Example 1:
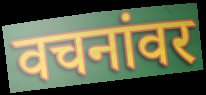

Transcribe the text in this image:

वचनांवर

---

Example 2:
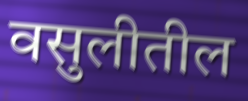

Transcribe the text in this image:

वसुलीतील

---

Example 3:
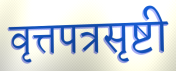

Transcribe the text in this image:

वृत्तपत्रसृष्टी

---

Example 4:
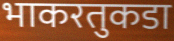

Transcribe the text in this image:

भाकरतुकडा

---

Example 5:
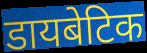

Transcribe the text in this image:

डायबेटिक